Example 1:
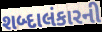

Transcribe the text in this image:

શબ્દાલંકારની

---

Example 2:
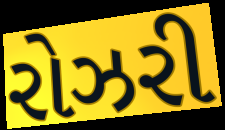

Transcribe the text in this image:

રોઝરી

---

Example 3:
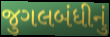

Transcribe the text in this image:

જુગલબંધીનું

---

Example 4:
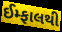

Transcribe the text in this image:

ઈમ્ફાલથી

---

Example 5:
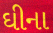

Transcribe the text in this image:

ઘીના